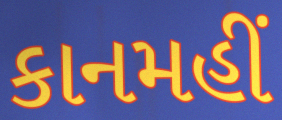
કાનમહીં